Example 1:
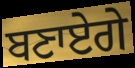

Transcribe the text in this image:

ਬਣਾਏਗੇ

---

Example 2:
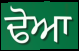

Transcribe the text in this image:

ਢੋਆ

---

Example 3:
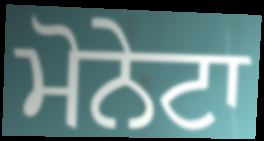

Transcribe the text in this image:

ਮੋਨੇਟਾ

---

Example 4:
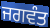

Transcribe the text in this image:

ਜਗਵੰਤ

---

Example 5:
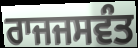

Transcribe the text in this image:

ਰਾਜਜਸਵੰਤ